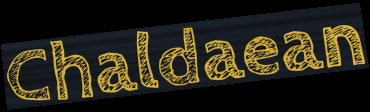
Chaldaean